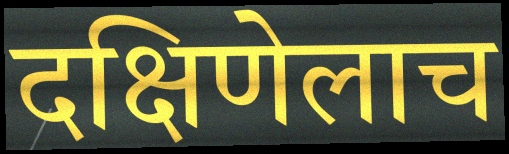
दक्षिणेलाच